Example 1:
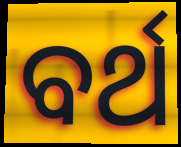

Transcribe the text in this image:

ବର୍ଥ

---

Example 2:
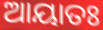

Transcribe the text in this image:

ଆୟାତଃ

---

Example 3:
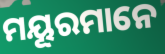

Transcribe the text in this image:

ମୟୂରମାନେ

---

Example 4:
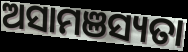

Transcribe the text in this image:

ଅସାମଞସ୍ୟତା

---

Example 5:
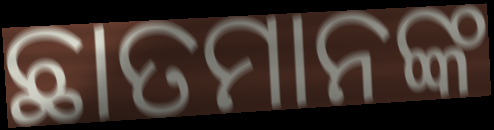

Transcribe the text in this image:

ଛାତମାନଙ୍କ